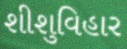
શીશુવિહાર